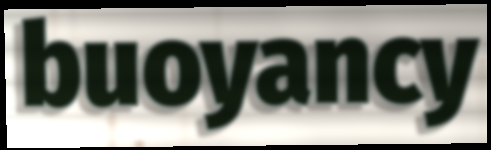
buoyancy